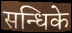
सन्धिके